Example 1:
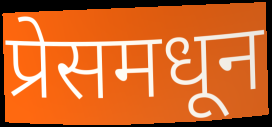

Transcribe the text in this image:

प्रेसमधून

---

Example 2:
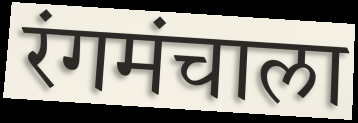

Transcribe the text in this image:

रंगमंचाला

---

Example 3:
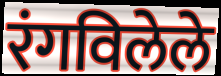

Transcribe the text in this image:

रंगविलेले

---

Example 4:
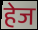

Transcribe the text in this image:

हेज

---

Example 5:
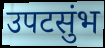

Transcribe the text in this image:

उपटसुंभ